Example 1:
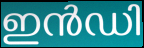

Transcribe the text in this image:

ഇൻഡി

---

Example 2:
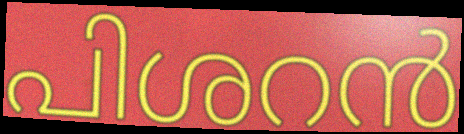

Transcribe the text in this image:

പിശറൻ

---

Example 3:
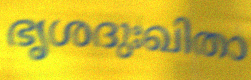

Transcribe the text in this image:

ഭൃശദുഃഖിതാ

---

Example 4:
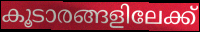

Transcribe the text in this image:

കൂടാരങ്ങളിലേക്ക്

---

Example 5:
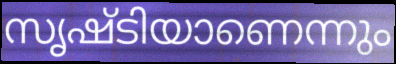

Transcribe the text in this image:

സൃഷ്ടിയാണെന്നും